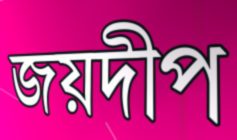
জয়দীপ